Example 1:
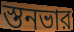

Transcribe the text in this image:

স্তনভার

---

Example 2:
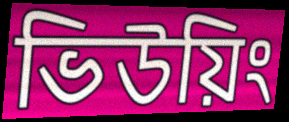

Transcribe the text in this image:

ভিউয়িং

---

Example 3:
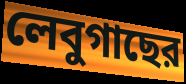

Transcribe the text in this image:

লেবুগাছের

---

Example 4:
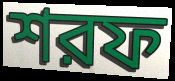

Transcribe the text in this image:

শরফ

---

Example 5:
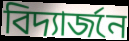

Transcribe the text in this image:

বিদ্যার্জনে